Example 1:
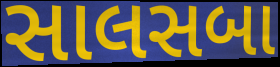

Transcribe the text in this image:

સાલસબા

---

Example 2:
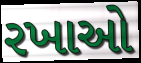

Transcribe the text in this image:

રખાઓ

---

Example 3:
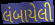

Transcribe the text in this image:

લંબાયેલી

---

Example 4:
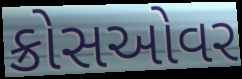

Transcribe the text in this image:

ક્રોસઓવર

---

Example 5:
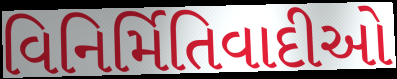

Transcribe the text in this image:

વિનિર્મિતિવાદીઓ